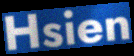
Hsien